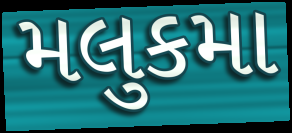
મલુકમા